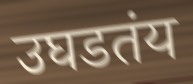
उघडतंय